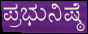
ಪ್ರಭುನಿಷ್ಠೆ